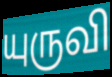
யுருவி